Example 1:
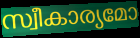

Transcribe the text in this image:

സ്വീകാര്യമോ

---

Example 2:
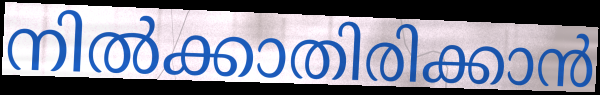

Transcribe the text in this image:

നിൽക്കാതിരിക്കാൻ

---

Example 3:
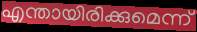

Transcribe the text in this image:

എന്തായിരിക്കുമെന്ന്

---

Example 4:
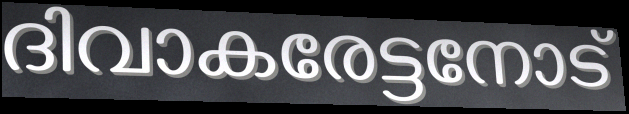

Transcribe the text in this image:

ദിവാകരേട്ടനോട്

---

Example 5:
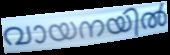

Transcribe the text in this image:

വായനയിൽ